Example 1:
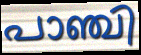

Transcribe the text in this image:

പാഞ്ചി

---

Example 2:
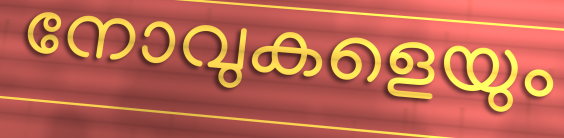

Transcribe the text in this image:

നോവുകളെയും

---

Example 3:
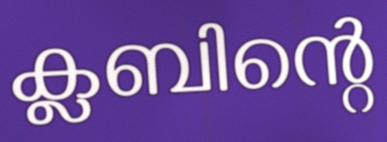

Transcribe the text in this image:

ക്ലബിന്റെ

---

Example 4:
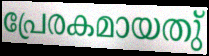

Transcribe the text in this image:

പ്രേരകമായതു്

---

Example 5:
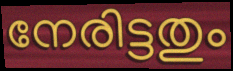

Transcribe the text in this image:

നേരിട്ടതും